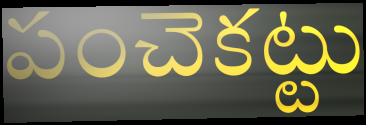
పంచెకట్టు